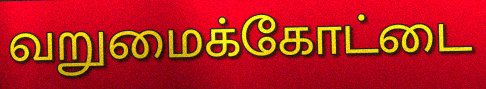
வறுமைக்கோட்டை